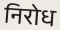
निरोध